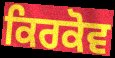
ਕਿਰਕੋਵ